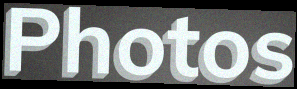
Photos